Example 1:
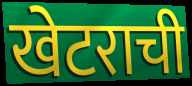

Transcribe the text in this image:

खेटराची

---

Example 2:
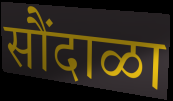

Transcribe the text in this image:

सौंदाळा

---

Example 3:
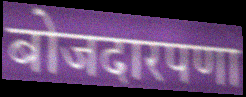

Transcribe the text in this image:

बोजदारपणा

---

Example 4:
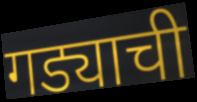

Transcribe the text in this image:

गड्याची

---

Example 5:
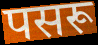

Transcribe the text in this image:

पसरू